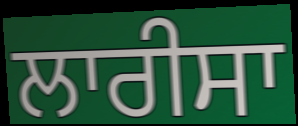
ਲਾਰੀਸਾ